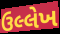
ઉલ્લેખ